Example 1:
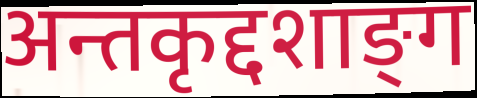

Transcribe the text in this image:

अन्तकृद्दशाङ्ग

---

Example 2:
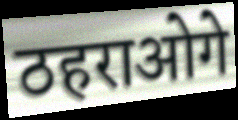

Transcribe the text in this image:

ठहराओगे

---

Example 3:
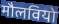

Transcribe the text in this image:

मौलवियो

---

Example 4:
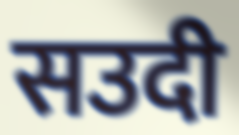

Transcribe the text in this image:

सउदी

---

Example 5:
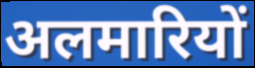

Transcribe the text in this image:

अलमारियों